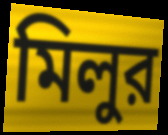
মিলুর